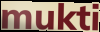
mukti